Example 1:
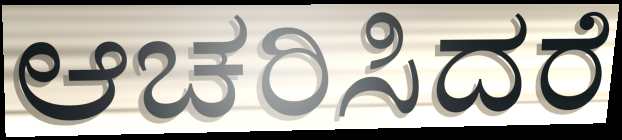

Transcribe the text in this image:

ಆಚರಿಸಿದರೆ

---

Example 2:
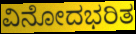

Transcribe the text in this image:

ವಿನೋದಭರಿತ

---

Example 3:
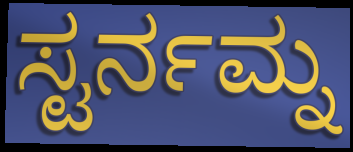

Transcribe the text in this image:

ಸ್ಟರ್ನಮ್ನ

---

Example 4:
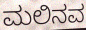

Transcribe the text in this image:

ಮಲಿನವ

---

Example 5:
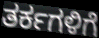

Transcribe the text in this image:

ತರ್ಕಗಳಿಗೆ